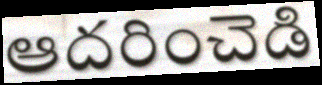
ఆదరించెడి